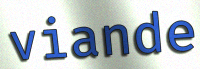
viande